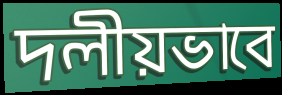
দলীয়ভাবে